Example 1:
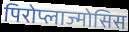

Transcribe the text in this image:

पिरोप्लाज्मोसिस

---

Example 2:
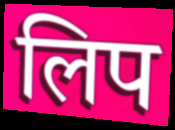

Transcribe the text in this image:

लिप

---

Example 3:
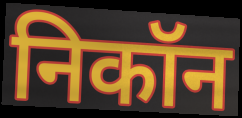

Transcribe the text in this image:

निकॉन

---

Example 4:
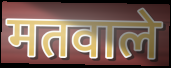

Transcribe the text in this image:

मतवाले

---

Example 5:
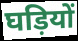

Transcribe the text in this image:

घड़ियों